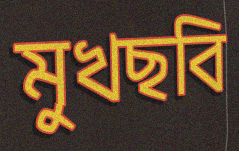
মুখছবি